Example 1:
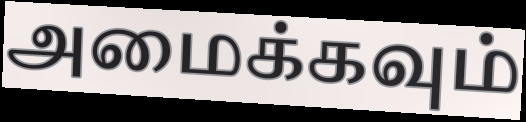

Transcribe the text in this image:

அமைக்கவும்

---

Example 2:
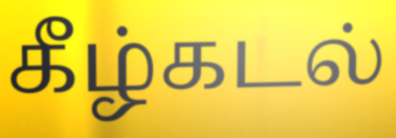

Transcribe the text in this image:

கீழ்கடல்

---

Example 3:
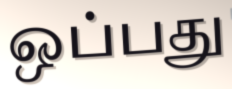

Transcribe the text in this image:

ஒப்பது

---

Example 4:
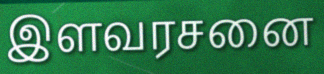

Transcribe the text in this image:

இளவரசனை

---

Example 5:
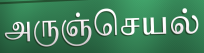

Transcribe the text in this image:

அருஞ்செயல்